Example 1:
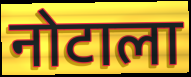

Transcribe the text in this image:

नोटाला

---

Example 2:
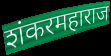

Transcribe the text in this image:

शंकरमहाराज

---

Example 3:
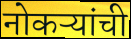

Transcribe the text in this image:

नोकऱ्यांची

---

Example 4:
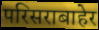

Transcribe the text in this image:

परिसराबाहेर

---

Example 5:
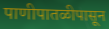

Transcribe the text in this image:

पाणीपातळीपासून